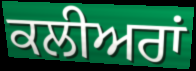
ਕਲੀਅਰਾਂ